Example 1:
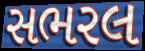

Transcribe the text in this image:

સભરલ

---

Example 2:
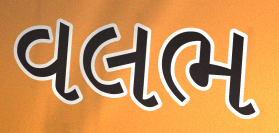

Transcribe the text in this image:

વલભ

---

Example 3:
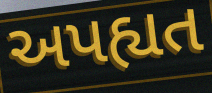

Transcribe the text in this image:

અપહ્યત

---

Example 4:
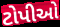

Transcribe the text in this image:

ટોપીઓ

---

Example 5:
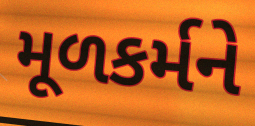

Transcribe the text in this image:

મૂળકર્મને